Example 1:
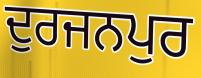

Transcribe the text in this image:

ਦੁਰਜਨਪੁਰ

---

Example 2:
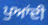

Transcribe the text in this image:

ਪੁਆਂਦੀ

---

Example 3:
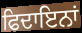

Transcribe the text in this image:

ਫਿਦਾਇਨਾਂ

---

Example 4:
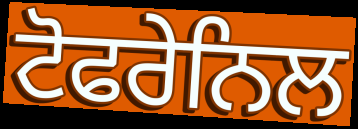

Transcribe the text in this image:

ਟੋਫਰੇਨਿਲ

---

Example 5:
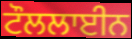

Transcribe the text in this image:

ਟੌਲਲਾਈਨ